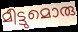
മീട്ടുമൊരു